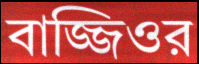
বাজ্জিওর